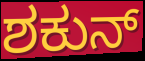
ಶಕುನ್